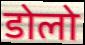
डोलो